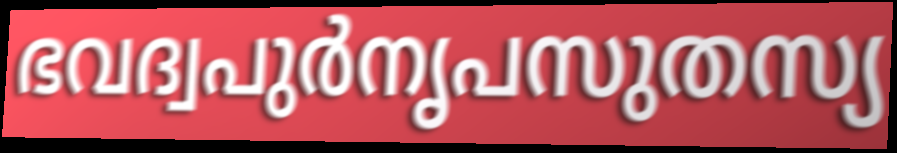
ഭവദ്വപുർനൃപസുതസ്യ